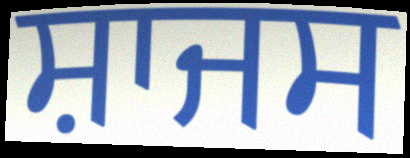
ਸ਼ਾਜਸ